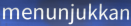
menunjukkan